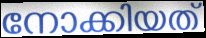
നോക്കിയത്